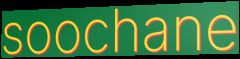
soochane